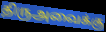
திருஅவைக்கு